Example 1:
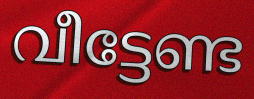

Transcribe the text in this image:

വീട്ടേണ്ട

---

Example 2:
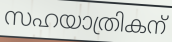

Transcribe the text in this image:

സഹയാത്രികന്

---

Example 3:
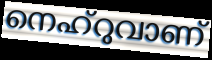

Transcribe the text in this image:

നെഹ്റുവാണ്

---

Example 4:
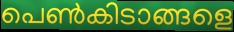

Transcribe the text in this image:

പെൺകിടാങ്ങളെ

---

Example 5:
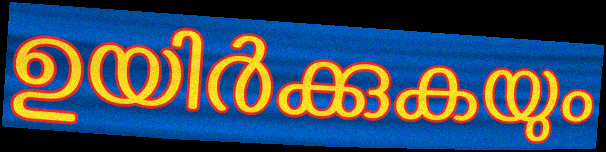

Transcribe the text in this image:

ഉയിർക്കുകയും